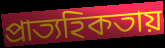
প্রাত্যহিকতায়